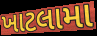
ખાટલામા